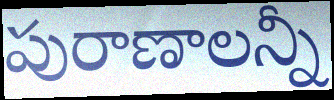
పురాణాలన్నీ